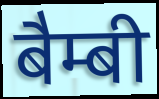
बैम्बी